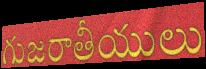
గుజరాతీయులు